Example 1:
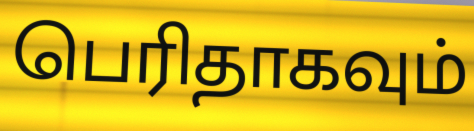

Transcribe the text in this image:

பெரிதாகவும்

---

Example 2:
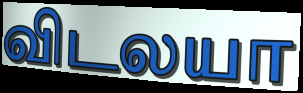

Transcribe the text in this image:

விடலயா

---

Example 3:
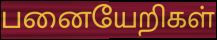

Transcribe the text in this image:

பனையேறிகள்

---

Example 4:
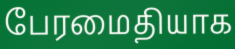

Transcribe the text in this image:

பேரமைதியாக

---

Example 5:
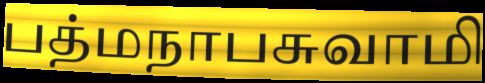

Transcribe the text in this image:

பத்மநாபசுவாமி